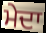
ਮੇਦਾ